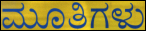
ಮೂತಿಗಳು